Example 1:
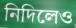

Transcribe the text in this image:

নিদিলেও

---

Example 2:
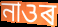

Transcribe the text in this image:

নাওৰ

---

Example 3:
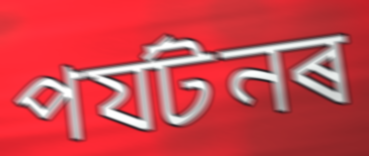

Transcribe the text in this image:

পৰ্যটনৰ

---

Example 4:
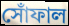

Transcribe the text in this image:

সোঁফাল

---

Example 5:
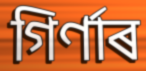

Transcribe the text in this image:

গিৰ্ণাৰ